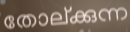
തോല്ക്കുന്ന